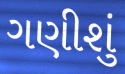
ગણીશું